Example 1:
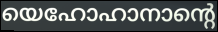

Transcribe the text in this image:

യെഹോഹാനാന്റെ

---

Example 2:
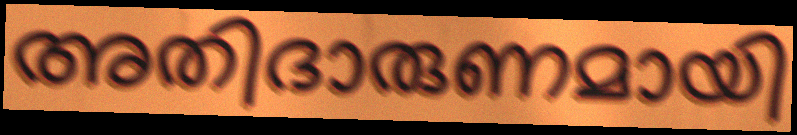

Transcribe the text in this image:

അതിദാരുണമായി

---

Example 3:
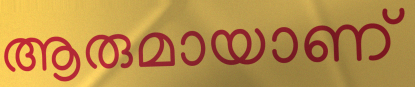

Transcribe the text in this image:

ആരുമായാണ്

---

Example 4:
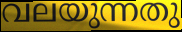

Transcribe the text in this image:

വലയുന്നതു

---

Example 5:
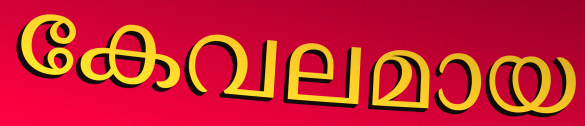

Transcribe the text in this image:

കേവലമായ